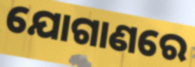
ଯୋଗାଣରେ